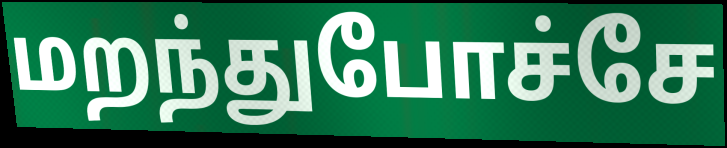
மறந்துபோச்சே